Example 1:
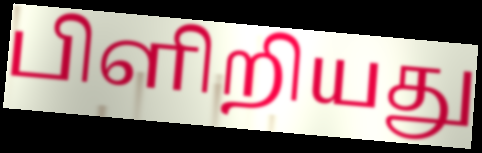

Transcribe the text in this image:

பிளிறியது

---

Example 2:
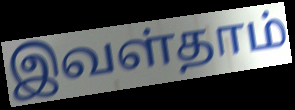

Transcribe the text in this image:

இவள்தாம்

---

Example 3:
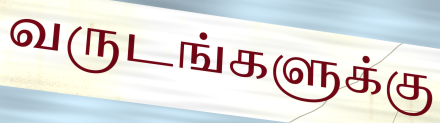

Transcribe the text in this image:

வருடங்களுக்கு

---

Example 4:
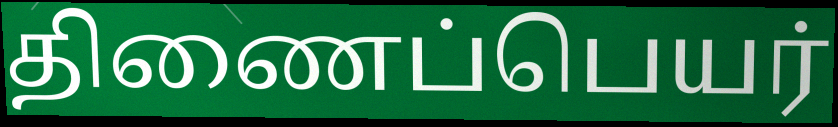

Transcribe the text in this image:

திணைப்பெயர்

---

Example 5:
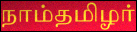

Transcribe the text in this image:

நாம்தமிழர்